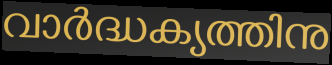
വാർദ്ധക്യത്തിനു